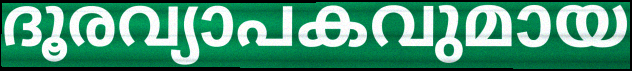
ദൂരവ്യാപകവുമായ